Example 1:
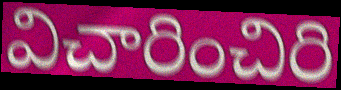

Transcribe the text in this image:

విచారించిరి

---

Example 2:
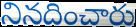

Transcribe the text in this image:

నినదించారు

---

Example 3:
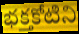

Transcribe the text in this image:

భక్తకోటిని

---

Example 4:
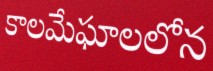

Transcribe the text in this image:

కాలమేఘాలలోన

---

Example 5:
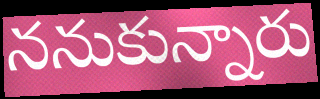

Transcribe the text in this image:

ననుకున్నారు